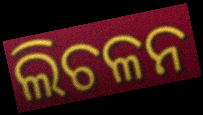
ଲିଚଳନ